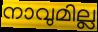
നാവുമില്ല